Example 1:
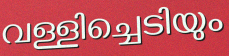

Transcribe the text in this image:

വള്ളിച്ചെടിയും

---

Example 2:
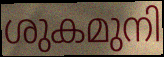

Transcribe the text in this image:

ശുകമുനി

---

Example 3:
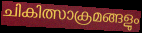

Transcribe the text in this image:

ചികിത്സാക്രമങ്ങളും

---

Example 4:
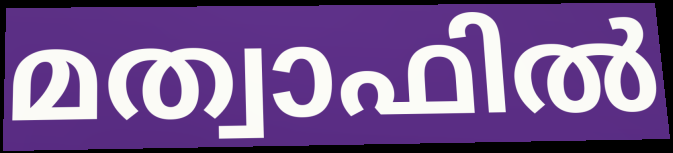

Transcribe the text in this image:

മത്വാഫിൽ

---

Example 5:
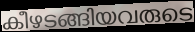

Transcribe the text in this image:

കീഴടങ്ങിയവരുടെ